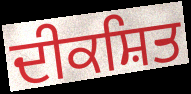
ਦੀਕਸ਼ਿਤ